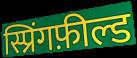
स्प्रिंगफ़ील्ड